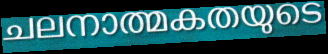
ചലനാത്മകതയുടെ